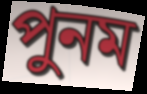
পুনম